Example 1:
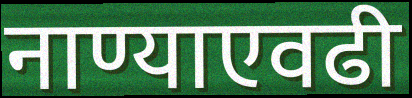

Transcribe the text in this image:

नाण्याएवढी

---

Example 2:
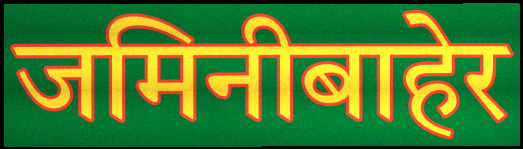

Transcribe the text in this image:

जमिनीबाहेर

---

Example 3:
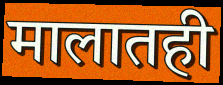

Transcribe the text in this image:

मालातही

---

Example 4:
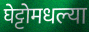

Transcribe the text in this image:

घेट्टोमधल्या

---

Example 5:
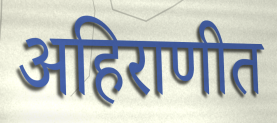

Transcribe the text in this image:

अहिराणीत